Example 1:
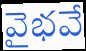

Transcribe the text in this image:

వైభవే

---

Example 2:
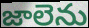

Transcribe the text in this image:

జాలెను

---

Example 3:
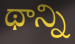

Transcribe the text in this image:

థాన్ని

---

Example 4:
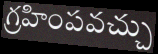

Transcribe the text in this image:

గ్రహింపవచ్చు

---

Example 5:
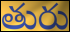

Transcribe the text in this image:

తురు